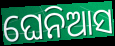
ଘେନିଆସ